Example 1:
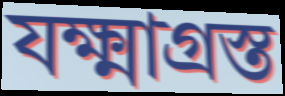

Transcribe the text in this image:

যক্ষ্মাগ্রস্ত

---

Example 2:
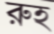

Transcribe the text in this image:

রুহ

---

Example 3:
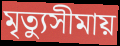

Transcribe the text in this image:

মৃত্যুসীমায়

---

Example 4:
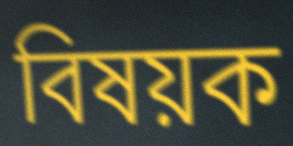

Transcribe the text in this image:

বিষয়ক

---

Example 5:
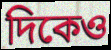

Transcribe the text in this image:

দিকেও